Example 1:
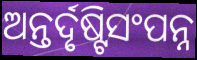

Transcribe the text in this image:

ଅନ୍ତର୍ଦୃଷ୍ଟିସଂପନ୍ନ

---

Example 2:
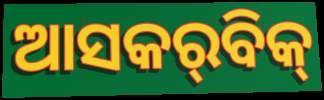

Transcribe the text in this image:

ଆସକର୍‌ବିକ୍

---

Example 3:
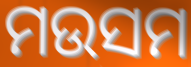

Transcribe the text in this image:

ମଉସମ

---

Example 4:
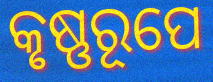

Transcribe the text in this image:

କୃଷ୍ଣରୂପେ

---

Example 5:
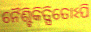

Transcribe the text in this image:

ନୈଶ୍ଚିକିତ୍ସିତୋଽପି